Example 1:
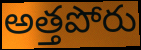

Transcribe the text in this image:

అత్తపోరు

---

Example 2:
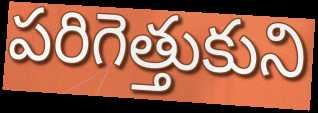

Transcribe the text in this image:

పరిగెత్తుకుని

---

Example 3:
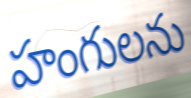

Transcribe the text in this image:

హంగులను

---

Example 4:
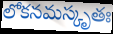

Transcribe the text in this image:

లోకనమస్కృతః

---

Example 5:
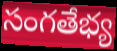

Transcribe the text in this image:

సంగతేభ్య